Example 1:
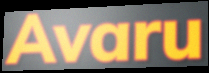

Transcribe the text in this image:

Avaru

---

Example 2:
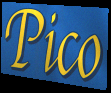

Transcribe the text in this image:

Pico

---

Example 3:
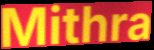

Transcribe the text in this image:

Mithra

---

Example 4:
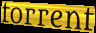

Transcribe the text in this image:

torrent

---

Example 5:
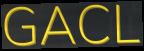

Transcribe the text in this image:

GACL